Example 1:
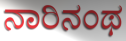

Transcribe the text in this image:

ನಾರಿನಂಥ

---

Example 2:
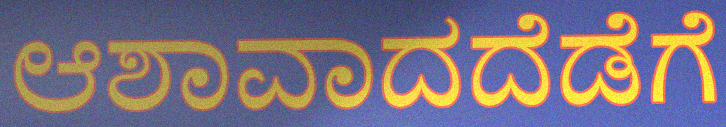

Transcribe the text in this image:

ಆಶಾವಾದದೆಡೆಗೆ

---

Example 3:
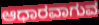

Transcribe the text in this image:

ಆಧಾರವಾಗುವ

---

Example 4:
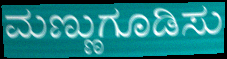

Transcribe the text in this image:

ಮಣ್ಣುಗೂಡಿಸು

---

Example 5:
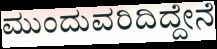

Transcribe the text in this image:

ಮುಂದುವರಿದಿದ್ದೇನೆ